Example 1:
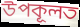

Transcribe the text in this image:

উপকূলত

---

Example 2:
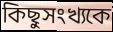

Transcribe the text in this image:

কিছুসংখ্যকে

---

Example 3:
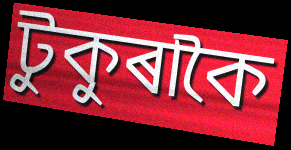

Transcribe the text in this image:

টুকুৰাকৈ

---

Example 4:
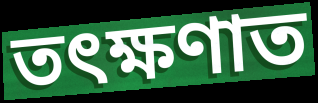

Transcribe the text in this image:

তৎক্ষণাত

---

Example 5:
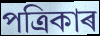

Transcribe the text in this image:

পত্ৰিকাৰ